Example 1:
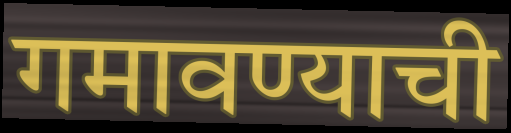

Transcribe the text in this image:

गमावण्याची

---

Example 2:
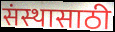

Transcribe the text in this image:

संस्थासाठी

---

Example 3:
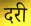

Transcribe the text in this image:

दरी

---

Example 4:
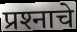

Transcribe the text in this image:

प्रश्‍नाचे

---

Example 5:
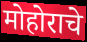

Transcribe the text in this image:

मोहोराचे